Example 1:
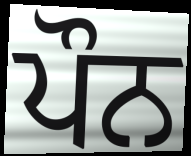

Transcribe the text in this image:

ਪੌਨ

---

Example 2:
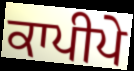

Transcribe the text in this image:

ਕਾਪੀਪੇ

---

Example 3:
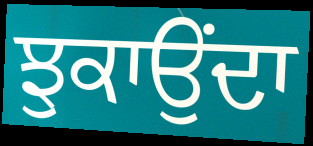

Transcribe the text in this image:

ਝੁਕਾਉਂਦਾ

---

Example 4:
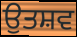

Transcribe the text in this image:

ਉਤਸ਼ਵ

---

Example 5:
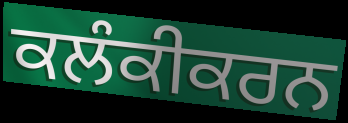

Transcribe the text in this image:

ਕਲੰਕੀਕਰਨ